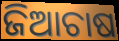
ଜିଆଚାଷ